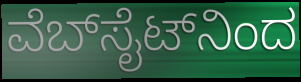
ವೆಬ್‍ಸೈಟ್‍ನಿಂದ